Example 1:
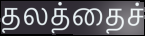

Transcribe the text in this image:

தலத்தைச்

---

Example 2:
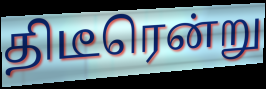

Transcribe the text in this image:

திடீரென்று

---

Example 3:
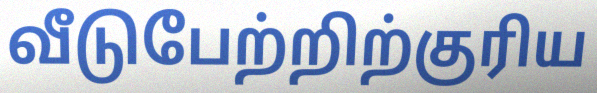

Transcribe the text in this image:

வீடுபேற்றிற்குரிய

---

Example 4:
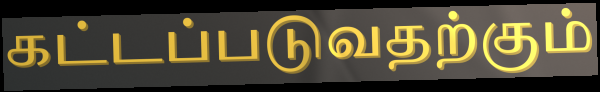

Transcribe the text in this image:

கட்டப்படுவதற்கும்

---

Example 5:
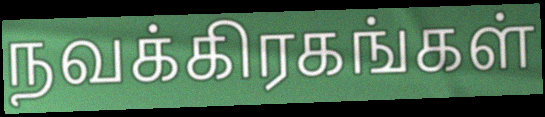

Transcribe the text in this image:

நவக்கிரகங்கள்